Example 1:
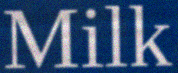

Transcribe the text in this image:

Milk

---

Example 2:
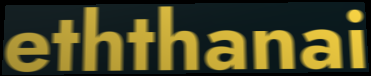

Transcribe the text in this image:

eththanai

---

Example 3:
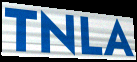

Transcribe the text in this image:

TNLA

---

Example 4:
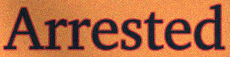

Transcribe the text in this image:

Arrested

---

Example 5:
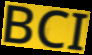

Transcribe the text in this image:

BCI